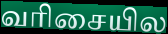
வரிசையில